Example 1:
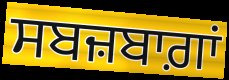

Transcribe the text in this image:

ਸਬਜ਼ਬਾਗ਼ਾਂ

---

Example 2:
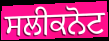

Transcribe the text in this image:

ਸਲੀਕਨੋਟ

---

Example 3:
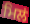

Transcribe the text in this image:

ਮਿਲਂ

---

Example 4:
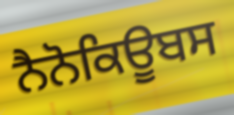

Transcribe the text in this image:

ਨੈਨੋਕਿਊਬਸ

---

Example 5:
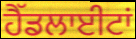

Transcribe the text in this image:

ਹੈੱਡਲਾਈਟਾਂ